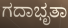
ಗದಾಭೃತಾ